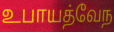
உபாயத்வேந